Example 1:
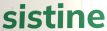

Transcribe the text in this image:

sistine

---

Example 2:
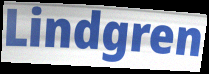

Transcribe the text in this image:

Lindgren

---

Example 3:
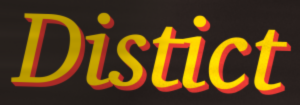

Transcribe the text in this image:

Distict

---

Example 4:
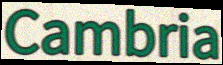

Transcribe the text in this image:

Cambria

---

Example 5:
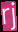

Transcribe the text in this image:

rj